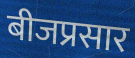
बीजप्रसार